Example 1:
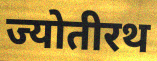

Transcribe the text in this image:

ज्योतीरथ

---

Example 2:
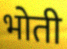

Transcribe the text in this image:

भोती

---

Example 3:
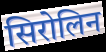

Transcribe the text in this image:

सिरोलिन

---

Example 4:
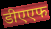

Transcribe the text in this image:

डीएएफ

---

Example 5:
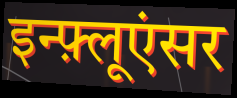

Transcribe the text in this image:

इन्फ़्लूएंसर